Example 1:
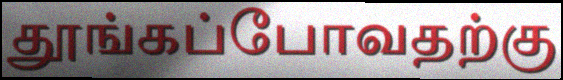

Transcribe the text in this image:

தூங்கப்போவதற்கு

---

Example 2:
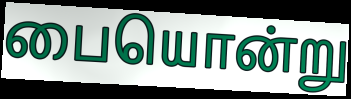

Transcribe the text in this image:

பையொன்று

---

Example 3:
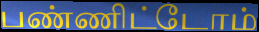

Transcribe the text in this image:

பண்ணிட்டோம்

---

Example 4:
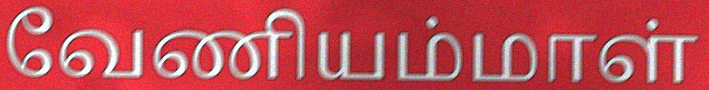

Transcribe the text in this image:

வேணியம்மாள்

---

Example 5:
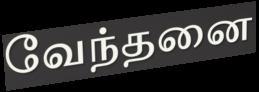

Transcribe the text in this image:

வேந்தனை